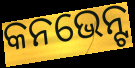
କନଭେନ୍ଟ